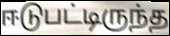
ஈடுபட்டிருந்த